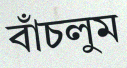
বাঁচলুম